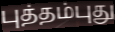
புத்தம்புது